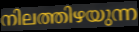
നിലത്തിഴയുന്ന